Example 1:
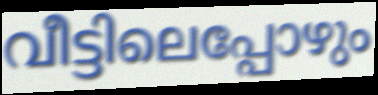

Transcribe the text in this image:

വീട്ടിലെപ്പോഴും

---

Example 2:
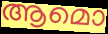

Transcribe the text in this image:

ആമൊ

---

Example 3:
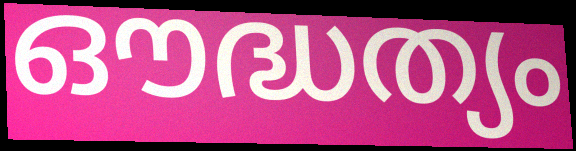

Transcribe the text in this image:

ഔദ്ധത്യം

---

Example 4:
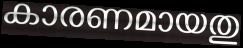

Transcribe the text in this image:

കാരണമായതു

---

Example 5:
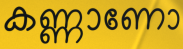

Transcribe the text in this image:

കണ്ണാണോ